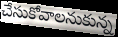
చేసుకోవాలనుకున్న